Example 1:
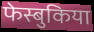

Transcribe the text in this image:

फेस्बुकिया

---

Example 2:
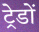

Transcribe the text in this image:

ट्रेडों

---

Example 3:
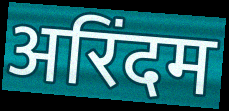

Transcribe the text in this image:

अरिंदम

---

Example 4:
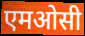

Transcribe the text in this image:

एमओसी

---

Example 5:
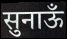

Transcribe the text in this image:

सुनाऊँ